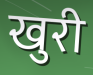
खुरी